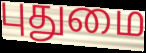
புதுமை